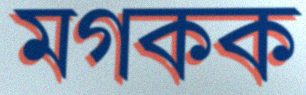
মগকক